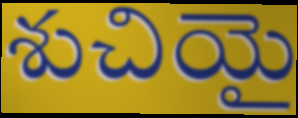
శుచియై